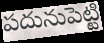
పదునుపెట్టి